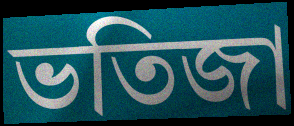
ভতিজা